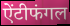
ऐंटीफंगल